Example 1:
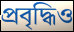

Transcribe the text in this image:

প্রবৃদ্ধিও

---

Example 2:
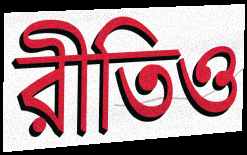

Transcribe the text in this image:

রীতিও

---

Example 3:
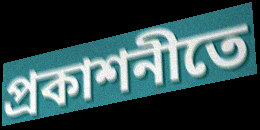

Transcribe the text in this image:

প্রকাশনীতে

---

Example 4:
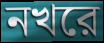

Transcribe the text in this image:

নখরে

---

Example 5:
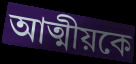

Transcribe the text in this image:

আত্মীয়কে